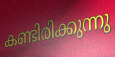
കണ്ടിരിക്കുന്നു